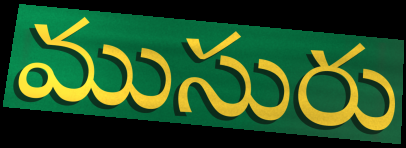
ముసురు